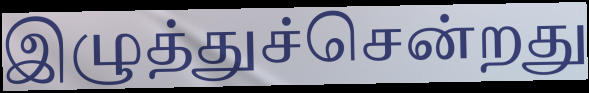
இழுத்துச்சென்றது